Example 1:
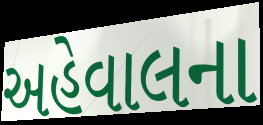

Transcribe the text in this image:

અહેવાલના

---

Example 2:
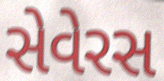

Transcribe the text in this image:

સેવેરસ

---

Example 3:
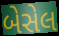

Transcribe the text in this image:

બેસેલ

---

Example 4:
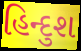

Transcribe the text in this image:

હિન્દુશ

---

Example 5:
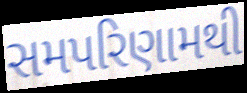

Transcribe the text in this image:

સમપરિણામથી